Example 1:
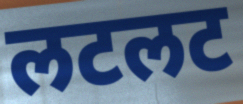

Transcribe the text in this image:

लटलट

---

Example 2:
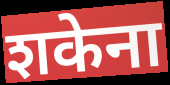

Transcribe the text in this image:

शकेना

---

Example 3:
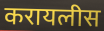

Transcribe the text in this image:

करायलीस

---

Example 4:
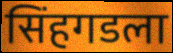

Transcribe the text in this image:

सिंहगडला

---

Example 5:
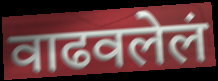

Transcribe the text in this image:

वाढवलेलं